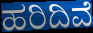
ಹರಿದಿವೆ